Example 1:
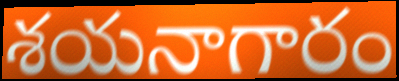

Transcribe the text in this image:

శయనాగారం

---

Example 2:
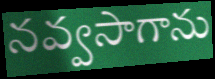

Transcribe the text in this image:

నవ్వసాగాను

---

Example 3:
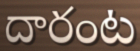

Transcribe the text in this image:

దారంట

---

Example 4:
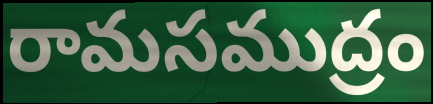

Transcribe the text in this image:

రామసముద్రం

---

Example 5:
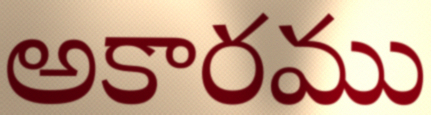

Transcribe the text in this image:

అకారము